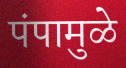
पंपामुळे